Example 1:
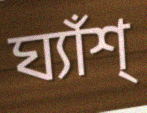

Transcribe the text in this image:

ঘ্যাঁশ্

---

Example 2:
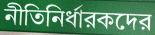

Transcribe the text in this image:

নীতিনির্ধারকদের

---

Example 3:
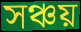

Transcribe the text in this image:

সঞ্চয়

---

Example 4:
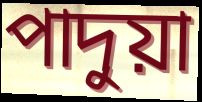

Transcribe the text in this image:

পাদুয়া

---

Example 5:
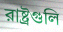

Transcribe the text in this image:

রাষ্ট্রগুলি